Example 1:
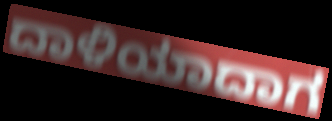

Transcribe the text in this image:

ದಾಳಿಯಾದಾಗ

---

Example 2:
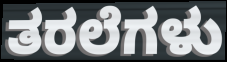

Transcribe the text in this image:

ತರಲೆಗಳು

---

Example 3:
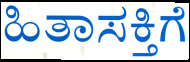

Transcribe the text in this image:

ಹಿತಾಸಕ್ತಿಗೆ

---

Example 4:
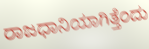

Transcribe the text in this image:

ರಾಜಧಾನಿಯಾಗಿತ್ತೆಂದು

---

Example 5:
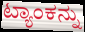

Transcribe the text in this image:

ಟ್ಯಾಂಕನ್ನು